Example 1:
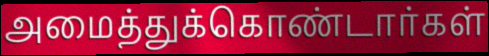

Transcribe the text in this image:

அமைத்துக்கொண்டார்கள்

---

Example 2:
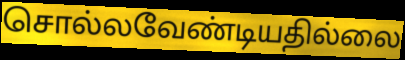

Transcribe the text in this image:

சொல்லவேண்டியதில்லை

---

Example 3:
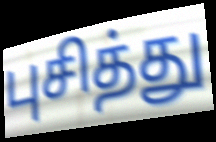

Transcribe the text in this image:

புசித்து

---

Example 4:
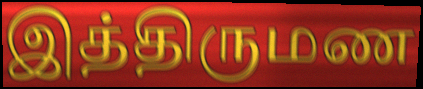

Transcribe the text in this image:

இத்திருமண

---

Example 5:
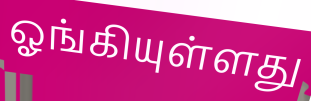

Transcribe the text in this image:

ஓங்கியுள்ளது